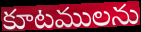
కూటములను